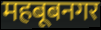
महबूबनगर